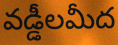
వడ్డీలమీద